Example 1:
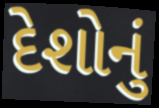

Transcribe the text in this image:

દેશોનું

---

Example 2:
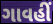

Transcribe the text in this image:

ગાવહીં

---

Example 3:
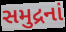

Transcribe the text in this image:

સમુદ્રનાં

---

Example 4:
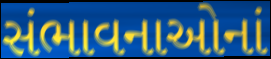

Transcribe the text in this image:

સંભાવનાઓનાં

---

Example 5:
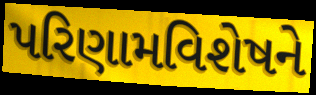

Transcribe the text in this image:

પરિણામવિશેષને